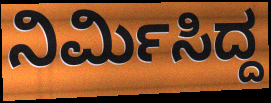
ನಿರ್ಮಿಸಿದ್ದ